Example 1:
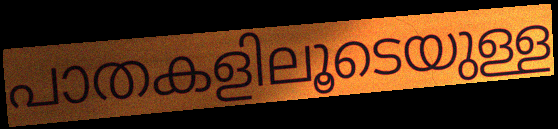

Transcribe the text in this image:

പാതകളിലൂടെയുള്ള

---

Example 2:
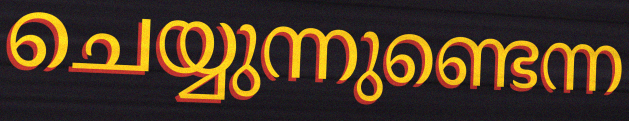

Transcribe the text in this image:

ചെയ്യുന്നുണ്ടെന്ന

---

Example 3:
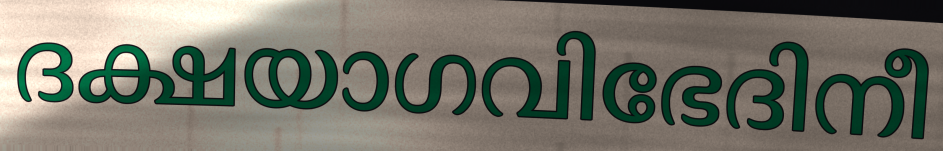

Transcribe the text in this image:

ദക്ഷയാഗവിഭേദിനീ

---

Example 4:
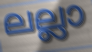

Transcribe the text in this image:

ലല്ലാ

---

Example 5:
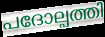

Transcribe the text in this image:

പദോല്പത്തി